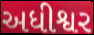
અધીશ્વર